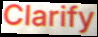
Clarify